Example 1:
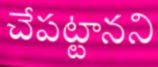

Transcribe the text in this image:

చేపట్టానని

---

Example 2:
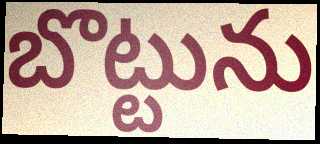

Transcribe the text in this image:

బొట్టును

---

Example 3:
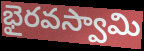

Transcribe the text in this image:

భైరవస్వామి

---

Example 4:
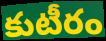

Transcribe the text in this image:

కుటీరం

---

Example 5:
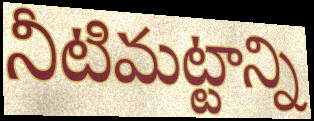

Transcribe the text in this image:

నీటిమట్టాన్ని